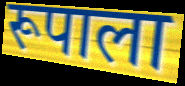
रूपाला